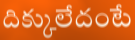
దిక్కులేదంటే